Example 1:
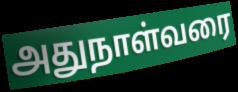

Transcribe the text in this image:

அதுநாள்வரை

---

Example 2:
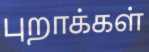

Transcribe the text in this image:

புறாக்கள்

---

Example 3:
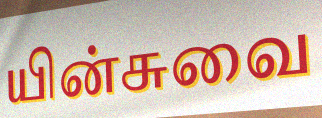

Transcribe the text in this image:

யின்சுவை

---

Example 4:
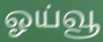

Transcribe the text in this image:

ஓய்வூ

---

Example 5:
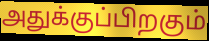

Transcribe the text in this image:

அதுக்குப்பிறகும்